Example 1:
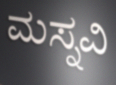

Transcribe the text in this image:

ಮಸ್ನವಿ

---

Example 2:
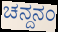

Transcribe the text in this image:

ಚನ್ದನಂ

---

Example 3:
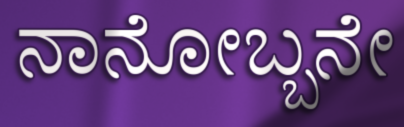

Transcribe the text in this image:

ನಾನೋಬ್ಬನೇ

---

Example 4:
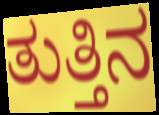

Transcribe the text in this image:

ತುತ್ತಿನ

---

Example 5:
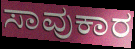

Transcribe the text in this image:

ಸಾವುಕಾರ